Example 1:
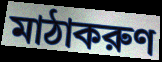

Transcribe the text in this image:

মাঠাকরুণ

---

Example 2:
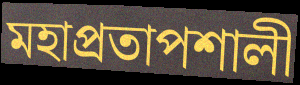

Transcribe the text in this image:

মহাপ্রতাপশালী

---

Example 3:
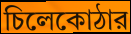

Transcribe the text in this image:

চিলেকোঠার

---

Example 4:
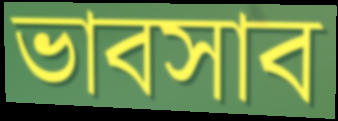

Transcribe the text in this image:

ভাবসাব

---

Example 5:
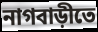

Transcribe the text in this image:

নাগবাড়ীতে